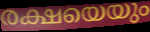
രക്ഷയെയും